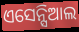
ଏସେନ୍ସିଆଲ